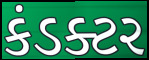
કંડક્ટર